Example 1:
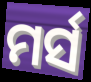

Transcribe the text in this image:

ମର୍ସ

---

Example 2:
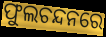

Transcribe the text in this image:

ଫୁଲଚନ୍ଦନରେ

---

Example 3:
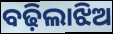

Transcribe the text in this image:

ବଢ଼ିଲାଝିଅ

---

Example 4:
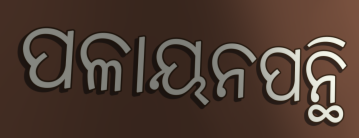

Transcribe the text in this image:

ପଳାୟନପନ୍ଥି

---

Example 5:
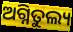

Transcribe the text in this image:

ଅଗ୍ନିତୁଲ୍ୟ